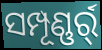
ସମ୍ପୂଣ୍ଣର୍ର୍